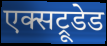
एक्सट्रूडेड